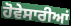
ਹੋਵੇਸਾਰੀਆਂ